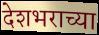
देशभराच्या